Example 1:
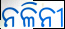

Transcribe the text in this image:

ନଳିନୀ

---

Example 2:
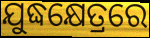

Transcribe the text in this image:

ଯୁଦ୍ଧକ୍ଷେତ୍ରରେ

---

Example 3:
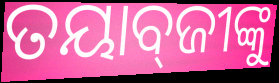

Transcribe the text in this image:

ତୟାବ୍‌ଜୀଙ୍କୁ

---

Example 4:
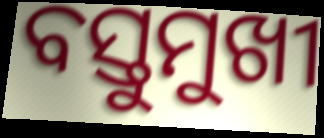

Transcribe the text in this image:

ବସ୍ତୁମୁଖୀ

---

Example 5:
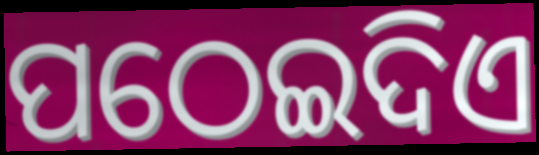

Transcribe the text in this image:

ପଠେଇଦିଏ